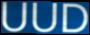
UUD